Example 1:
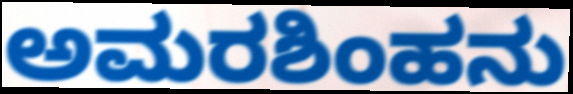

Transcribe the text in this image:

ಅಮರಶಿಂಹನು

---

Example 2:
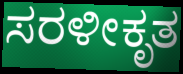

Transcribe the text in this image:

ಸರಳೀಕೃತ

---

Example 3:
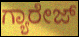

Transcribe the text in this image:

ಗ್ಯಾರೇಜ್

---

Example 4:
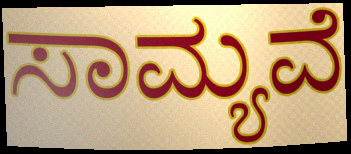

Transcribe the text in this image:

ಸಾಮ್ಯವೆ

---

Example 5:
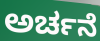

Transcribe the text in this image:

ಅರ್ಚನೆ